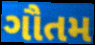
ગૌતમ